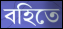
বহিতে